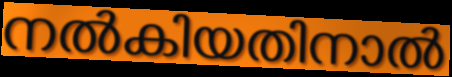
നൽകിയതിനാൽ